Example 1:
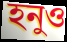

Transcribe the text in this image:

হনুও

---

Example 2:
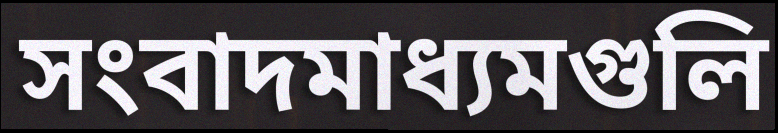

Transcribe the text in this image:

সংবাদমাধ্যমগুলি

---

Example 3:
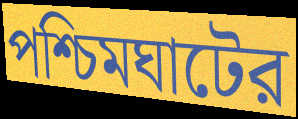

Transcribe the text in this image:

পশ্চিমঘাটের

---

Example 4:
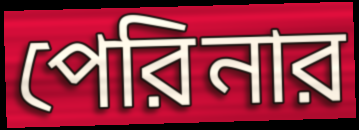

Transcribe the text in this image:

পেরিনার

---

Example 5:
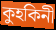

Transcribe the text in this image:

কুহকিনী